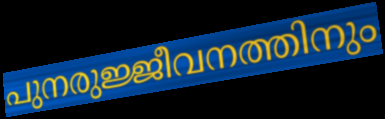
പുനരുജ്ജീവനത്തിനും